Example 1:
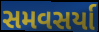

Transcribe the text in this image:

સમવસર્યા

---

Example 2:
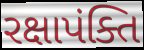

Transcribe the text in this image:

રક્ષાપંક્તિ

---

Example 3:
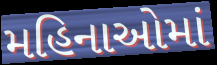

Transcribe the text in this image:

મહિનાઓમાં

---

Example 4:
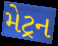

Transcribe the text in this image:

મેટ્રન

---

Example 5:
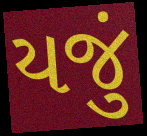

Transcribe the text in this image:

યજું